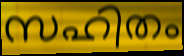
സഹിതം